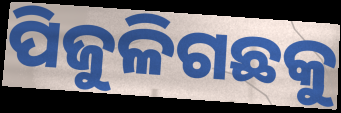
ପିଜୁଳିଗଛକୁ